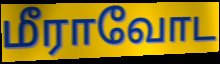
மீராவோட